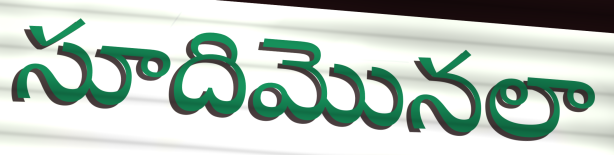
సూదిమొనలా